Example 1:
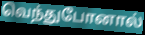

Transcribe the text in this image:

வெந்துபோனால்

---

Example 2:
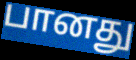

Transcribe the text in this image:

பானது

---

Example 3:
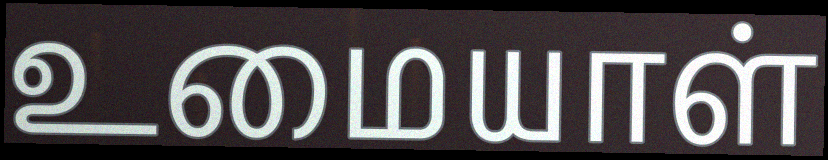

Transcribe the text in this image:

உமையாள்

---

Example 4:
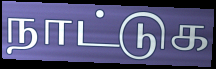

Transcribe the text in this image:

நாட்டுக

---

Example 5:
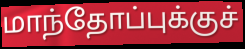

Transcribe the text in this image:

மாந்தோப்புக்குச்